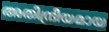
അതിന്ദ്രീയമായ